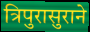
त्रिपुरासुराने